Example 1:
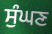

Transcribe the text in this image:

ਸੁੰਘਣ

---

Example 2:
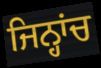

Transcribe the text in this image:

ਜਿਨ੍ਹਾਂਚ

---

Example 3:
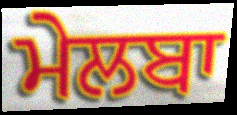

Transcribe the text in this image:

ਮੇਲਬਾ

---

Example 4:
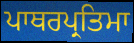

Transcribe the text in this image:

ਪਾਥਰਪ੍ਰਤਿਮਾ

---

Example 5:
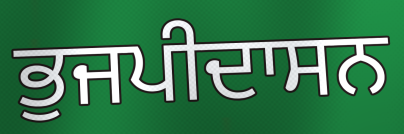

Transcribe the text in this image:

ਭੁਜਪੀਦਾਸਨ